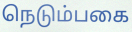
நெடும்பகை